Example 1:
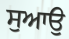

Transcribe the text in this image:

ਸੁਆਉ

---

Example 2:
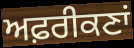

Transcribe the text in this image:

ਅਫ਼ਰੀਕਣਾਂ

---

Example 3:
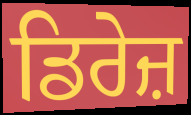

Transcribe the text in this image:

ਡਿਰੇਜ਼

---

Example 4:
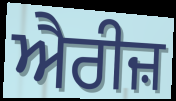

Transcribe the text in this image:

ਐਰੀਜ਼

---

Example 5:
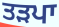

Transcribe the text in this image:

ਤੜਪਾ